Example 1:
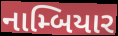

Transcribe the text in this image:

નામ્બિયાર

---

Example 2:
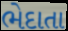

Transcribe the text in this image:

ભેદાતા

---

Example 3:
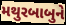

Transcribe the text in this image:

મથુરબાબુને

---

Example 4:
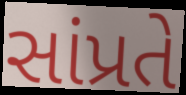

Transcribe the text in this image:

સાંપ્રતે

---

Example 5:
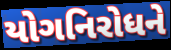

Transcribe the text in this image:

યોગનિરોધને